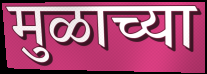
मुळाच्या